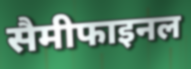
सैमीफाइनल